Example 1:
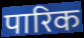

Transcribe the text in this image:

पारिक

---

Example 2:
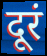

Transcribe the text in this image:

दूरं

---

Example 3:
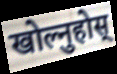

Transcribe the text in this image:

खोल्नुहोस्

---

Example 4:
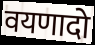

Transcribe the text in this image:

वयणादो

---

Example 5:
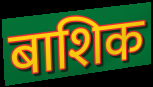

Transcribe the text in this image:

बाशिक